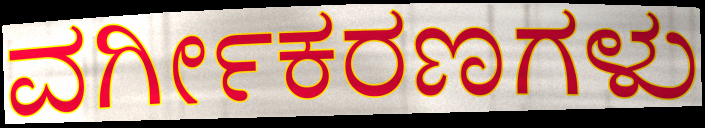
ವರ್ಗೀಕರಣಗಳು